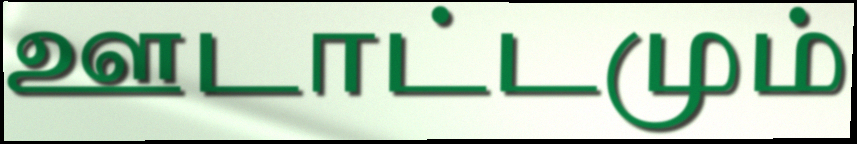
ஊடாட்டமும்